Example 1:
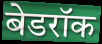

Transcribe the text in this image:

बेडरॉक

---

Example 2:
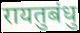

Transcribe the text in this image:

रायतुबंधु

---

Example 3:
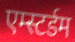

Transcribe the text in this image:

एम्स्टर्डम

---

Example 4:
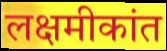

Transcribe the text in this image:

लक्षमीकांत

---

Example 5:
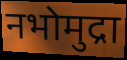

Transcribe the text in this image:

नभोमुद्रा